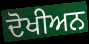
ਦੋਖੀਅਨ